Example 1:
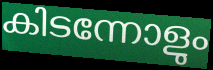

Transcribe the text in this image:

കിടന്നോളും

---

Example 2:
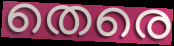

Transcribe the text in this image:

തെരെ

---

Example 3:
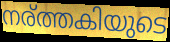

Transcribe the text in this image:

നര്ത്തകിയുടെ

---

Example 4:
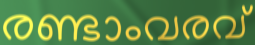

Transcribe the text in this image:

രണ്ടാംവരവ്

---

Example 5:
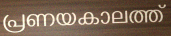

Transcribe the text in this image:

പ്രണയകാലത്ത്